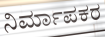
ನಿರ್ಮಾಪಕರ